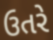
ઉતરે